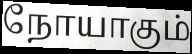
நோயாகும்